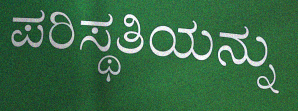
ಪರಿಸ್ಥತಿಯನ್ನು